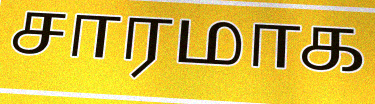
சாரமாக